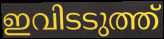
ഇവിടടുത്ത്